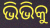
ଭିଭିକୁ